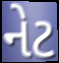
નેટ